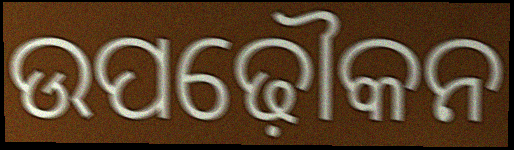
ଉପଢ଼ୌକନ